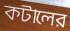
কটালের